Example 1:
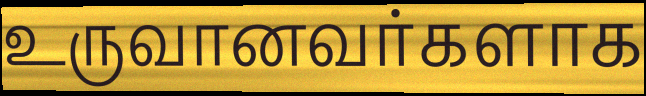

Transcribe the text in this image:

உருவானவர்களாக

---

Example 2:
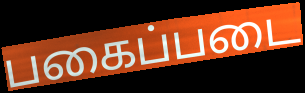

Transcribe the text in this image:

பகைப்படை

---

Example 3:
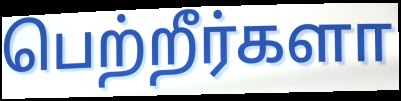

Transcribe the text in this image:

பெற்றீர்களா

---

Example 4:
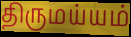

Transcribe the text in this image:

திருமய்யம்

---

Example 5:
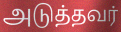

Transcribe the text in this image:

அடுத்தவர்